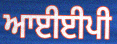
ਆਈਈਪੀ